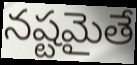
నష్టమైతే